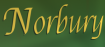
Norbury